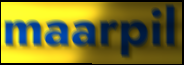
maarpil